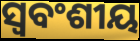
ସ୍ଵବଂଶୀୟ